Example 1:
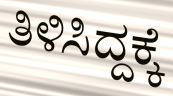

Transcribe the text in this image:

ತಿಳಿಸಿದ್ದಕ್ಕೆ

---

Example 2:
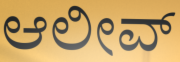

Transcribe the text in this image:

ಆಲೀವ್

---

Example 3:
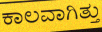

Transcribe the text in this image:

ಕಾಲವಾಗಿತ್ತು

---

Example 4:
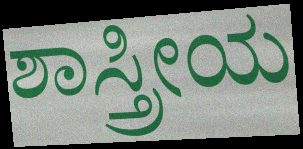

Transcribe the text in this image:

ಶಾಸ್ತ್ರೀಯ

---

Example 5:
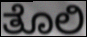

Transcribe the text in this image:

ತೊಲಿ